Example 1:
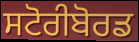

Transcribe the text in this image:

ਸਟੋਰੀਬੋਰਡ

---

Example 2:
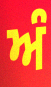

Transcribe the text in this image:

ਅੰ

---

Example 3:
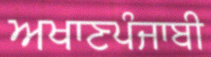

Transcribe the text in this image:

ਅਖਾਣਪੰਜਾਬੀ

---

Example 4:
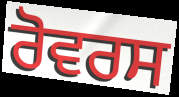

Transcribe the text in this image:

ਰੋਵਰਸ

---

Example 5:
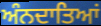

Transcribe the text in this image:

ਅੰਨਦਾਤਿਆਂ